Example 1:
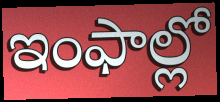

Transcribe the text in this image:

ఇంఫాల్లో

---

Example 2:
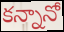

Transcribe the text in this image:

కన్నానో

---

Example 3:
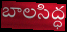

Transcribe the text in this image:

బాలసిద్ధ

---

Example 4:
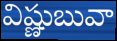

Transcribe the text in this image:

విష్ణుబువా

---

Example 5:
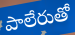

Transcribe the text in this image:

పాలేరుతో